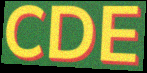
CDE